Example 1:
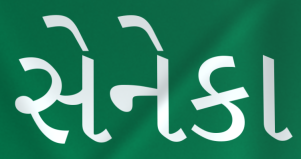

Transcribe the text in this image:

સેનેકા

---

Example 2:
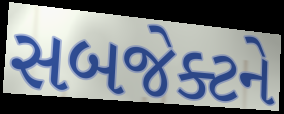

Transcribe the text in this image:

સબજેક્ટને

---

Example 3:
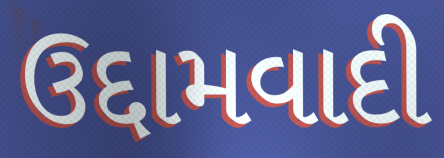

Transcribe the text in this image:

ઉદ્દામવાદી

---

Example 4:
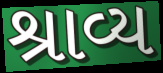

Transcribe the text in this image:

શ્રાવ્ય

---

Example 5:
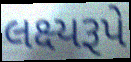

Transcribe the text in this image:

લક્ષ્યરૂપે